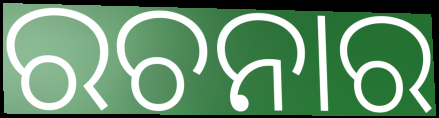
ରଚନାର